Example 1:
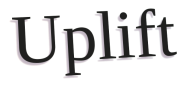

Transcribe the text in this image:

Uplift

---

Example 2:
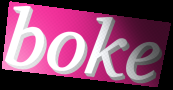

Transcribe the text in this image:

boke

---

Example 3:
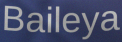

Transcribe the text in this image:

Baileya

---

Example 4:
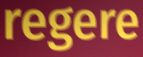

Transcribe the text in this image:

regere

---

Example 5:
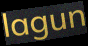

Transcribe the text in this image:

lagun